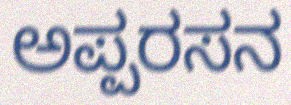
ಅಪ್ಪರಸನ